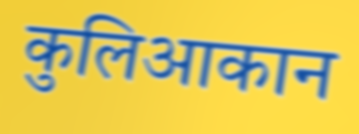
कुलिआकान